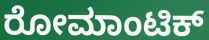
ರೋಮಾಂಟಿಕ್